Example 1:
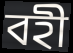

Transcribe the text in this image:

বহী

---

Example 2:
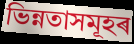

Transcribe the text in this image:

ভিন্নতাসমূহৰ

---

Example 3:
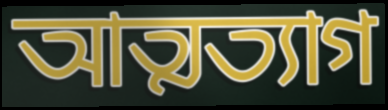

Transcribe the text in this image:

আত্মত্যাগ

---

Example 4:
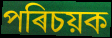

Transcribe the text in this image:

পৰিচয়ক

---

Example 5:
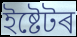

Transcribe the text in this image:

ইষ্টেটৰ